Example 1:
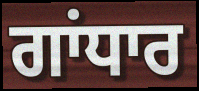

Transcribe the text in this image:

ਗਾਂਧਾਰ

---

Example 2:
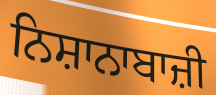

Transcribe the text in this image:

ਨਿਸ਼ਾਨਾਬਾਜ਼ੀ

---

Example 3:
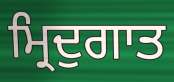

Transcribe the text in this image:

ਮ੍ਰਿਦੁਗਾਤ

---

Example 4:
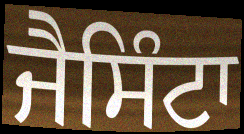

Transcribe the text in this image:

ਜੈਸਿੰਟਾ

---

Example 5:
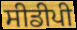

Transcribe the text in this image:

ਸੀਡੀਪੀ